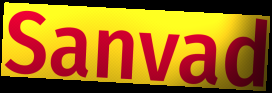
Sanvad